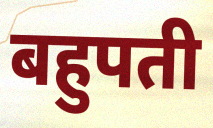
बहुपती